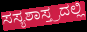
ಸಸ್ಯಶಾಸ್ತ್ರದಲ್ಲಿ